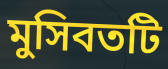
মুসিবতটি